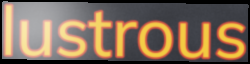
lustrous